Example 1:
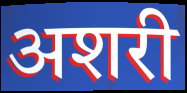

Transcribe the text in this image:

अशरी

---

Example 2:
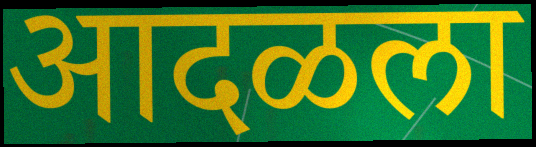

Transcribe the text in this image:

आदळला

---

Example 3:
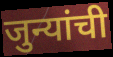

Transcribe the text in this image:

जुन्यांची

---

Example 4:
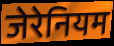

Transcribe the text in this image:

जेरेनियम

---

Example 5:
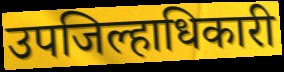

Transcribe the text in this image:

उपजिल्हाधिकारी